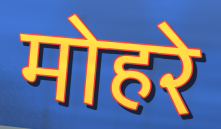
मोहरे